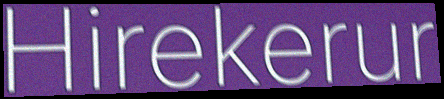
Hirekerur